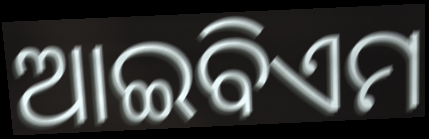
ଆଇବିଏମ